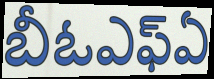
బీఓఎఫ్ఏ